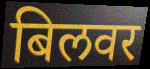
बिलवर